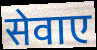
सेवाए